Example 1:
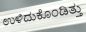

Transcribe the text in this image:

ಉಳಿದುಕೊಂಡಿತ್ತು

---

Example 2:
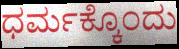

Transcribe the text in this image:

ಧರ್ಮಕ್ಕೊಂದು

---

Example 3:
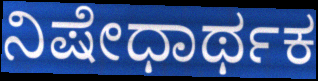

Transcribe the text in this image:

ನಿಷೇಧಾರ್ಥಕ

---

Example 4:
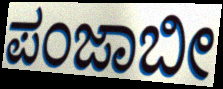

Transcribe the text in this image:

ಪಂಜಾಬೀ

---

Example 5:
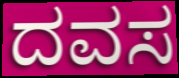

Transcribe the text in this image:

ದವಸ